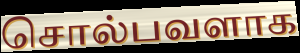
சொல்பவளாக